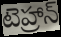
టెహ్రాన్